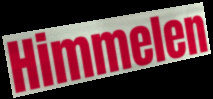
Himmelen